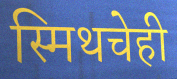
स्मिथचेही